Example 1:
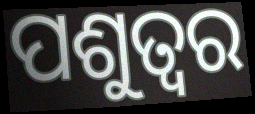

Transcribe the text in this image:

ପଶୁତ୍ୱର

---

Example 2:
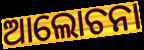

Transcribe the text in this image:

ଆଲୋଚନା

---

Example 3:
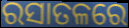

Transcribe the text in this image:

ରସାତଳରେ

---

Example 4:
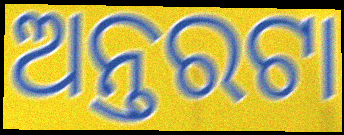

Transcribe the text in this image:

ଅନ୍ତରଟା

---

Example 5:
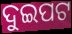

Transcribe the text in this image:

ଦୁଇପଟ